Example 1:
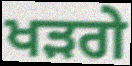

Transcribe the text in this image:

ਖੜਗੇ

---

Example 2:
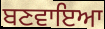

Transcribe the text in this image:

ਬਣਵਾਇਆ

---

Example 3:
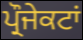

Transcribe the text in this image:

ਪ੍ਰੌਜੇਕਟਾਂ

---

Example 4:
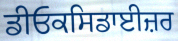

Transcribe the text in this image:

ਡੀਓਕਸਿਡਾਈਜ਼ਰ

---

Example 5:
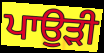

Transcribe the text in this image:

ਪਾਉੜੀ